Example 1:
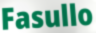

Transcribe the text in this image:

Fasullo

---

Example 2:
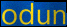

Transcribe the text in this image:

odun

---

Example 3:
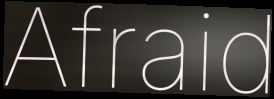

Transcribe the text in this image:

Afraid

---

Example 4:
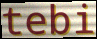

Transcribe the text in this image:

tebi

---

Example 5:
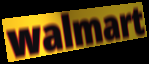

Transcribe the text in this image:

walmart